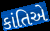
કાંતિએ